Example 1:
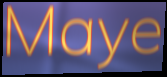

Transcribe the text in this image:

Maye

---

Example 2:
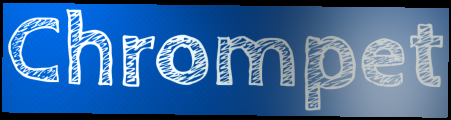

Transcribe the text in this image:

Chrompet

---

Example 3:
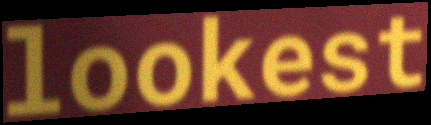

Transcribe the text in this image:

lookest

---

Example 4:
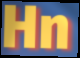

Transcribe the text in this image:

Hn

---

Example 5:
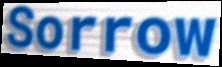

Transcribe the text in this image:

Sorrow